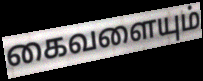
கைவளையும்